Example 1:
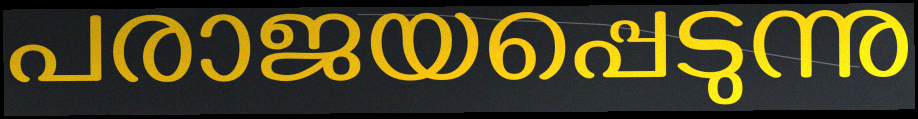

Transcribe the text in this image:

പരാജയപ്പെടുന്നു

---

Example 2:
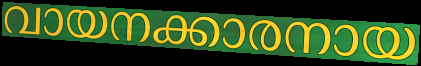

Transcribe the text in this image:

വായനക്കാരനായ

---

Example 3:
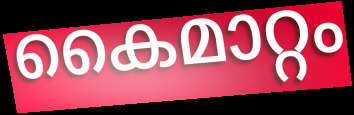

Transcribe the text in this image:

കൈമാറ്റം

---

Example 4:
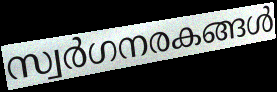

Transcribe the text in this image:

സ്വർഗനരകങ്ങൾ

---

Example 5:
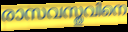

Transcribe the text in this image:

രാസവസ്തുവിനെ